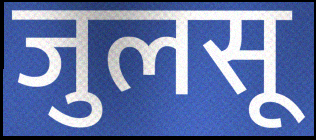
जुलसू